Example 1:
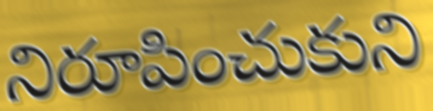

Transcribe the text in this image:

నిరూపించుకుని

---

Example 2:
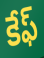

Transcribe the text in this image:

కేఫ్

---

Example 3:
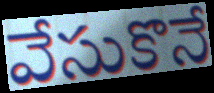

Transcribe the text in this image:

వేసుకొనే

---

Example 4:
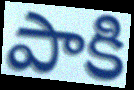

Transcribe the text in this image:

పాకి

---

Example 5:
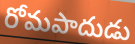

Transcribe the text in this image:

రోమపాదుడు